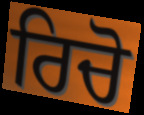
ਰਿਚੋ